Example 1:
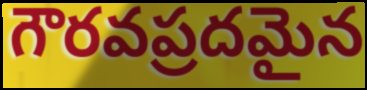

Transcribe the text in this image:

గౌరవప్రదమైన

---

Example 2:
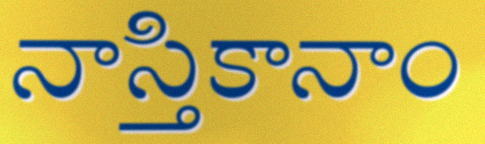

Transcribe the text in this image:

నాస్తికానాం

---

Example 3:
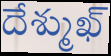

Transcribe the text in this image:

దేశ్ముఖ్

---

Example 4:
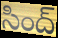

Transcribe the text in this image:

సింద్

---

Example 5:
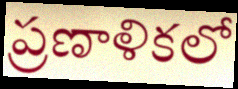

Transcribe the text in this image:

ప్రణాళికలో